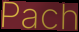
Pach